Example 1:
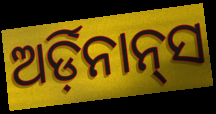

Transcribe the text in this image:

ଅର୍ଡ଼ିନାନ୍‌ସ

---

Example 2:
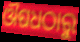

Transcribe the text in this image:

ଔଷଧଠାରୁ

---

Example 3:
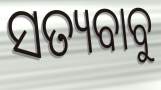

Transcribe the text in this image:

ସତ୍ୟବାବୁ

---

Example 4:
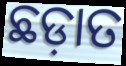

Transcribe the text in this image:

ଛଡ଼ାତ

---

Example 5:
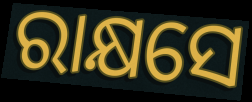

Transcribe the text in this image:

ରାକ୍ଷସେ